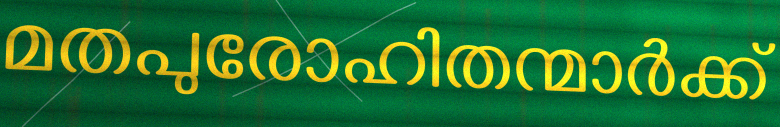
മതപുരോഹിതന്മാർക്ക്